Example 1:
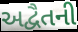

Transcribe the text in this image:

અદ્વૈતની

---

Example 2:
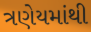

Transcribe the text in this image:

ત્રણેયમાંથી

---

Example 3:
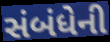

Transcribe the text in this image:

સંબંધેની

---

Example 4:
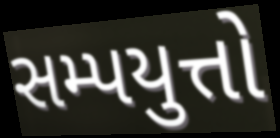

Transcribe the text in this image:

સમ્પયુત્તો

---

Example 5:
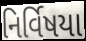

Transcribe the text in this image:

નિર્વિષયા